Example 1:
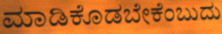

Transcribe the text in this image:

ಮಾಡಿಕೊಡಬೇಕೆಂಬುದು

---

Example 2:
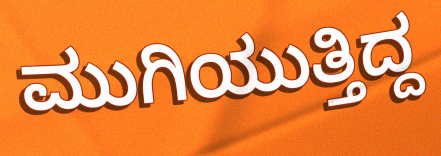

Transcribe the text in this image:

ಮುಗಿಯುತ್ತಿದ್ದ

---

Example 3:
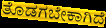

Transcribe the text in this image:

ತೊಡಗಬೇಕಾಗಿದೆ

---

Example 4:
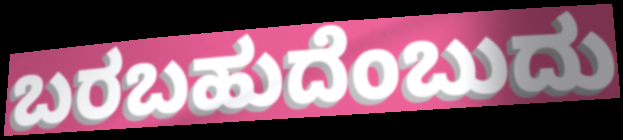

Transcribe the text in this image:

ಬರಬಹುದೆಂಬುದು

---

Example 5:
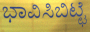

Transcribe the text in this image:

ಭಾವಿಸಿಬಿಟ್ಟೆ